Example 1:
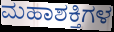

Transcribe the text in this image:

ಮಹಾಶಕ್ತಿಗಳ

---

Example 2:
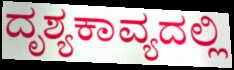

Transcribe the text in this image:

ದೃಶ್ಯಕಾವ್ಯದಲ್ಲಿ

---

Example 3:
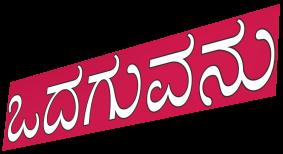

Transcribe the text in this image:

ಒದಗುವನು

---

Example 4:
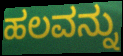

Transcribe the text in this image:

ಹಲವನ್ನು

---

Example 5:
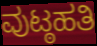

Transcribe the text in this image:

ವುಟ್ಠಹತಿ